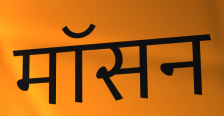
मॉसन